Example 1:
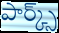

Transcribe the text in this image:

పార్క్స్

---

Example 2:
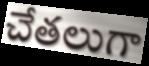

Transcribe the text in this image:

చేతలుగా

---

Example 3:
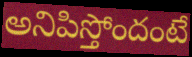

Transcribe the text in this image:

అనిపిస్తోందంటే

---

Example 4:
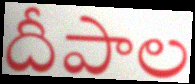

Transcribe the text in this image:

దీపాల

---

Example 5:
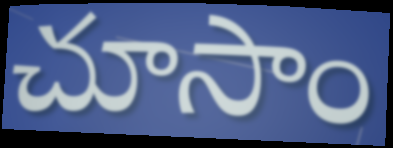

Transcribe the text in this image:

చూసాం